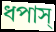
ধপাস্